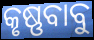
କୃଷ୍ଣବାବୁ